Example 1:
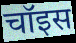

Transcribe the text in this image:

चॉइस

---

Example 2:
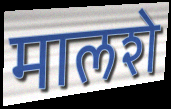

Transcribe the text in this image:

मालशे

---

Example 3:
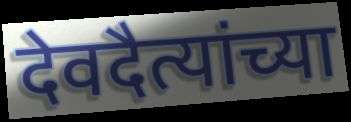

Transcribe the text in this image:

देवदैत्यांच्या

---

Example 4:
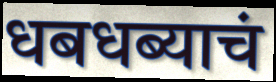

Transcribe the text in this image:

धबधब्याचं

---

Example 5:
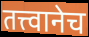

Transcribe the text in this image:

तत्त्वानेच